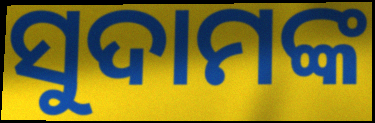
ସୁଦାମଙ୍କ